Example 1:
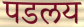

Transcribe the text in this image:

पडलय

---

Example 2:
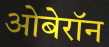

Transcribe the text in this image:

ओबेरॉन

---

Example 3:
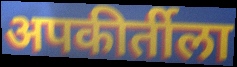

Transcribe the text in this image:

अपकीर्तीला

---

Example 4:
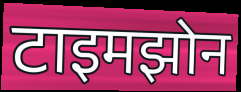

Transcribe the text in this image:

टाइमझोन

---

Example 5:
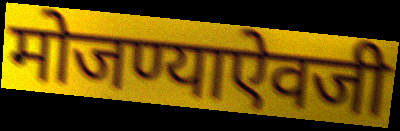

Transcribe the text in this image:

मोजण्याऐवजी